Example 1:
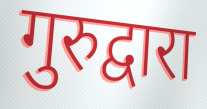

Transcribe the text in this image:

गुरुद्वारा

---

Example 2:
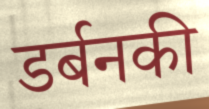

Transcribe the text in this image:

डर्बनकी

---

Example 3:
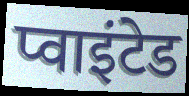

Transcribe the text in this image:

प्वाइंटेड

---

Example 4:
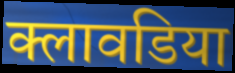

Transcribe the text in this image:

क्लावडिया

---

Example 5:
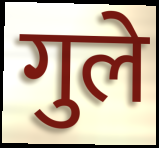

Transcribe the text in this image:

गुले